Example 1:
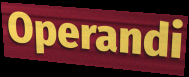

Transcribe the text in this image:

Operandi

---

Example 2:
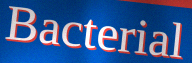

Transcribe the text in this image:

Bacterial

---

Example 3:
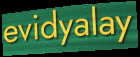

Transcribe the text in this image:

evidyalay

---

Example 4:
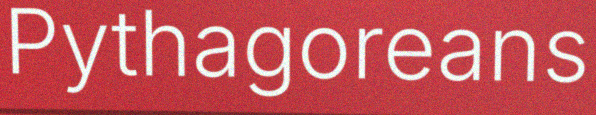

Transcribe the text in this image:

Pythagoreans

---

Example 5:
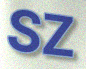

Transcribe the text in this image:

SZ